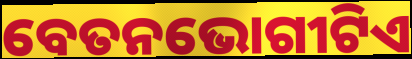
ବେତନଭୋଗୀଟିଏ